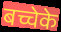
बच्चेके